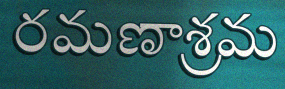
రమణాశ్రమ